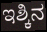
ಇಶ್ಕಿನ